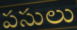
పసులు